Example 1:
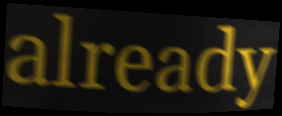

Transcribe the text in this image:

already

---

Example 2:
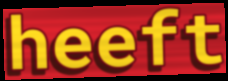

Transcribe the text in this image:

heeft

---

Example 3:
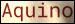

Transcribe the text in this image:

Aquino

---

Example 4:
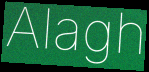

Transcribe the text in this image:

Alagh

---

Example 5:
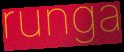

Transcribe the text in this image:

runga